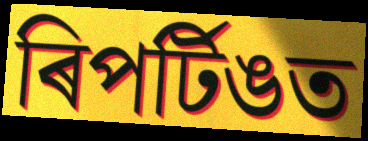
ৰিপৰ্টিঙত